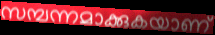
സമ്പന്നമാക്കുകയാണ്